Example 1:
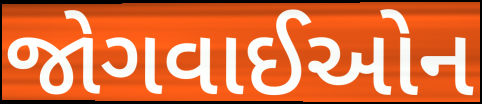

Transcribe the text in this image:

જોગવાઈઓન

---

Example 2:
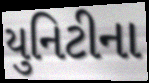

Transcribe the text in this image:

યુનિટીના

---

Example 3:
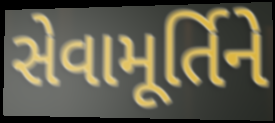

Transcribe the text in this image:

સેવામૂર્તિને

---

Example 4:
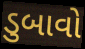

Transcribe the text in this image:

ડુબાવો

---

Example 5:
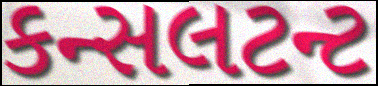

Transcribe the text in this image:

કન્સલટન્ટ